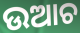
ଉଆଚ